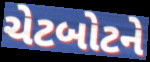
ચેટબોટને